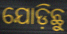
ଯୋଡ଼ିଛୁ